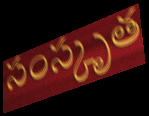
సంస్కృత